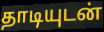
தாடியுடன்